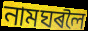
নামঘৰলৈ